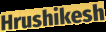
Hrushikesh